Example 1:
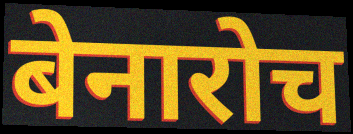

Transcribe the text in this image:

बेनारोच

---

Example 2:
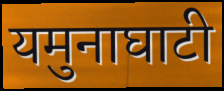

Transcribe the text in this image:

यमुनाघाटी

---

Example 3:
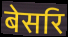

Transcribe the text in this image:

बेसरि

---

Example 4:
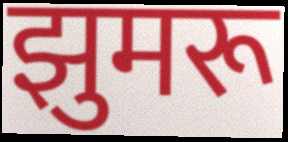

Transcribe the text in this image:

झुमरू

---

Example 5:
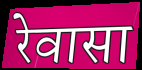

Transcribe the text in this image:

रेवासा